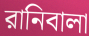
রানিবালা